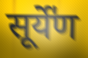
सूर्ये॑ण